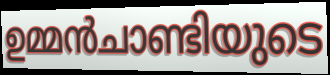
ഉമ്മൻചാണ്ടിയുടെ